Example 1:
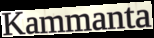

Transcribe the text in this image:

Kammanta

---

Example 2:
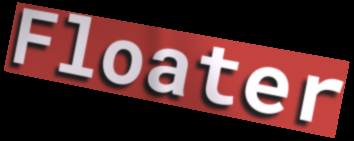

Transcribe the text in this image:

Floater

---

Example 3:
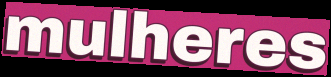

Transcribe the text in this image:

mulheres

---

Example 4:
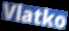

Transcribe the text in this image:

Vlatko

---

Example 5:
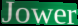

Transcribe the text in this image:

Jower